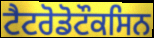
ਟੈਟਰੋਡੋਟੌਕਸਿਨ